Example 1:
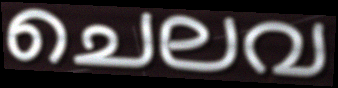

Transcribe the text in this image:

ചെലവ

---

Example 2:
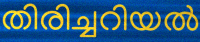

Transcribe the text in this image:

തിരിച്ചറിയൽ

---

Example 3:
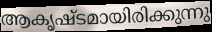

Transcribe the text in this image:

ആകൃഷ്ടമായിരിക്കുന്നു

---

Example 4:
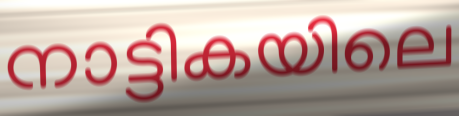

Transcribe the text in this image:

നാട്ടികയിലെ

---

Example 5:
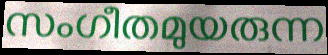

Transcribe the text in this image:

സംഗീതമുയരുന്ന